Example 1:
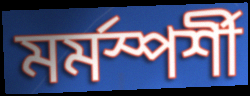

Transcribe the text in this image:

মর্মস্পর্শী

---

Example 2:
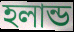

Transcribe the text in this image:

হলান্ড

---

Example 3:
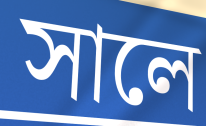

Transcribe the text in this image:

সালে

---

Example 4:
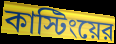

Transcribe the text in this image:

কাস্টিংয়ের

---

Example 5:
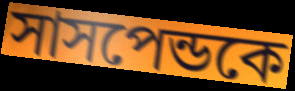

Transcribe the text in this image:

সাসপেন্ডকে